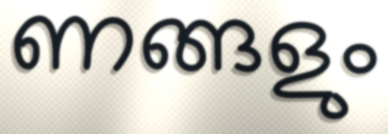
ണങ്ങളും